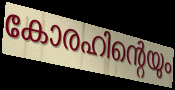
കോരഹിന്റെയും